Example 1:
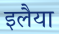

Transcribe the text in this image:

इलैया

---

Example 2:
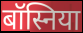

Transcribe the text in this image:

बॉस्निया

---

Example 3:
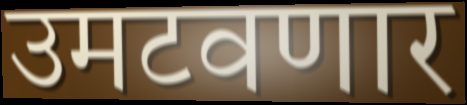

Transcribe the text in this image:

उमटवणार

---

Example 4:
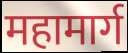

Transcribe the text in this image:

महामार्ग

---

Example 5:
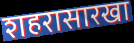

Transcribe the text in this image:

शहरासारखा